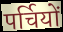
पर्चियों